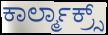
ಕಾರ್ಲ್ಮಾಕ್ರ್ಸ್